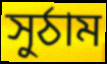
সুঠাম